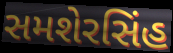
સમશેરસિંહ